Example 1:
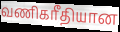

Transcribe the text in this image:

வணிகரீதியான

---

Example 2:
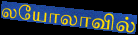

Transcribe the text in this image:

லயோலாவில்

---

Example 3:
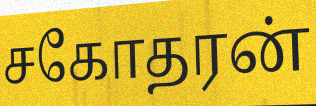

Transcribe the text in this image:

சகோதரன்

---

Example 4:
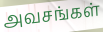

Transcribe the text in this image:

அவசங்கள்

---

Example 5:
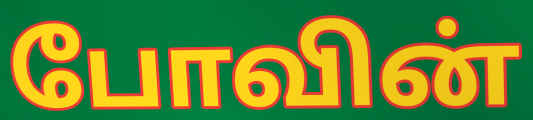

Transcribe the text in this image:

போவின்